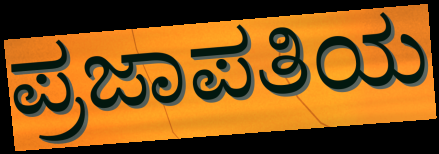
ಪ್ರಜಾಪತಿಯ